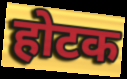
होटक